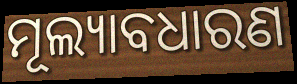
ମୂଲ୍ୟାବଧାରଣ